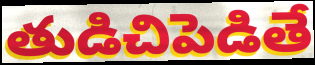
తుడిచిపెడితే